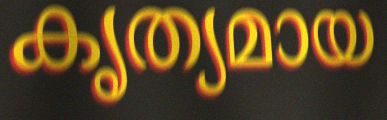
കൃത്യമായ